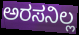
ಅರಸನಿಲ್ಲ